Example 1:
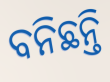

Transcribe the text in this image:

ବନିଛନ୍ତି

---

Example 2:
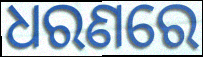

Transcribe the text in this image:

ଧରଣରେ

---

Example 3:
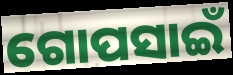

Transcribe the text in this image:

ଗୋପସାଇଁ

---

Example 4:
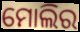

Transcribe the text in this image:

ମୋଲିର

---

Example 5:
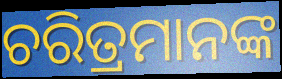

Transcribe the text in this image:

ଚରିତ୍ରମାନଙ୍କ